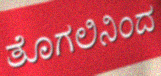
ತೊಗಲಿನಿಂದ